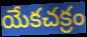
యేకచక్రం